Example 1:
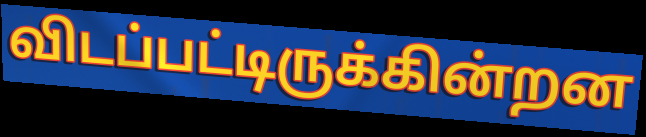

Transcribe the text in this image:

விடப்பட்டிருக்கின்றன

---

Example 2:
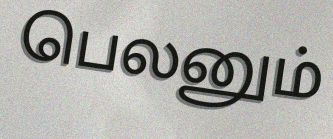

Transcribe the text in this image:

பெலனும்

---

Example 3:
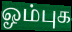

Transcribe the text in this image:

ஓம்புக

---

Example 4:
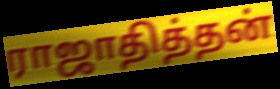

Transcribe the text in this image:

ராஜாதித்தன்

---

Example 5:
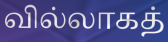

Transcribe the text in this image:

வில்லாகத்